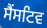
ਸੈਂਸਟਿਵ